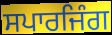
ਸਪਾਰਜਿੰਗ